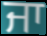
ਜਾ